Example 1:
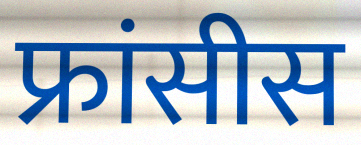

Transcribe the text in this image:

फ्रांसीस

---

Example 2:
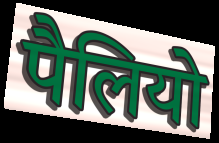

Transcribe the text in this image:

पैलियो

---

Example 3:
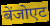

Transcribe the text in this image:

बेंजोएट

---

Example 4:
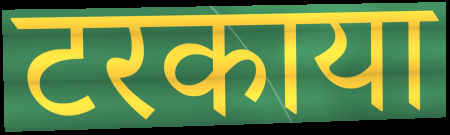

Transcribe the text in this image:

टरकाया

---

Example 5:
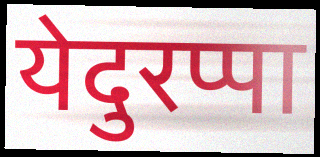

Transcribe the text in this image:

येदुरप्पा